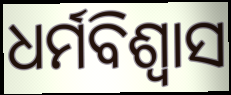
ଧର୍ମବିଶ୍ଵାସ